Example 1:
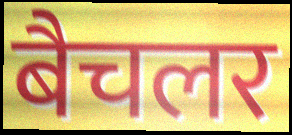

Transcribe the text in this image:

बैचलर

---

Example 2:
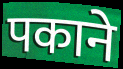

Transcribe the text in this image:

पकाने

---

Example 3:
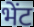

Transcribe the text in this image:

भेंट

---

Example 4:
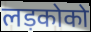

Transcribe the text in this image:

लड़कोको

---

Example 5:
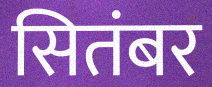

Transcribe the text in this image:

सितंबर